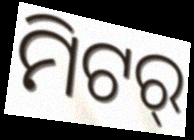
ମିଟର୍